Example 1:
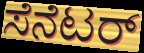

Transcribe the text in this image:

ಸೆನೆಟರ್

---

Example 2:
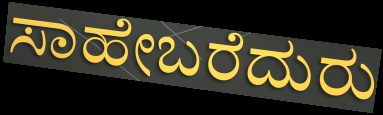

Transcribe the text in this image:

ಸಾಹೇಬರೆದುರು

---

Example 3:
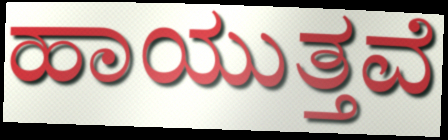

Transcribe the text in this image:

ಹಾಯುತ್ತವೆ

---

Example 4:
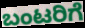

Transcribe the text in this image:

ಬಂಟರಿಗೆ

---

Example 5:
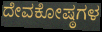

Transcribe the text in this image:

ದೇವಕೋಷ್ಠಗಳ